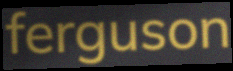
ferguson